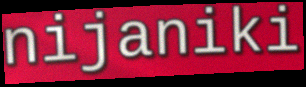
nijaniki